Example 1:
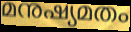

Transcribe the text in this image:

മനുഷ്യമതം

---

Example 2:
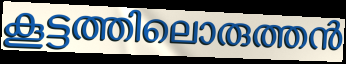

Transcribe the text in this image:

കൂട്ടത്തിലൊരുത്തൻ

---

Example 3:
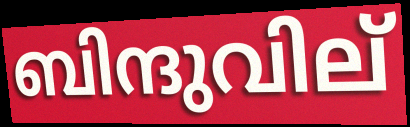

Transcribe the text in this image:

ബിന്ദുവില്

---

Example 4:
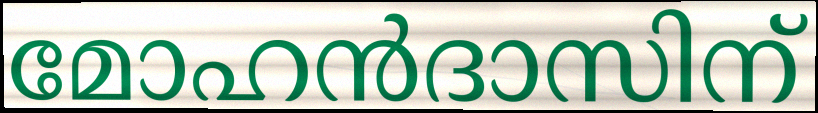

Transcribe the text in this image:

മോഹൻദാസിന്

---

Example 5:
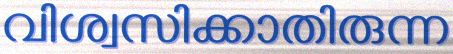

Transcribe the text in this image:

വിശ്വസിക്കാതിരുന്ന